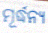
ମୂର୍ଦ୍ଧନ୍ୟ